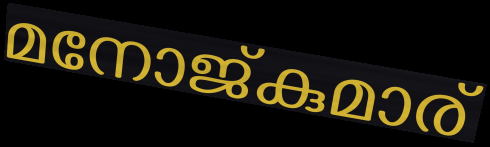
മനോജ്കുമാര്